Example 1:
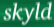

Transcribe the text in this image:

skyld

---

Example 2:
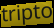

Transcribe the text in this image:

tripto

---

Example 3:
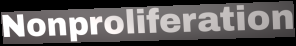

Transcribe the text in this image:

Nonproliferation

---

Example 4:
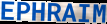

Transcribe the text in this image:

EPHRAIM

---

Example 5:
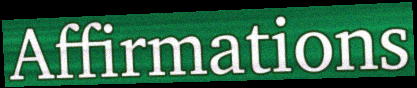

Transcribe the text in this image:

Affirmations